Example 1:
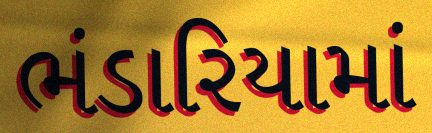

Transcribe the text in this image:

ભંડારિયામાં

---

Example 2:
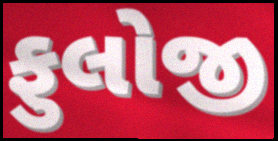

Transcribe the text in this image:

ફુલોજી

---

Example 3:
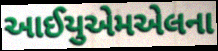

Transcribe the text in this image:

આઈયુએમએલના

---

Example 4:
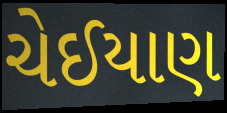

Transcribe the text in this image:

ચેઈયાણ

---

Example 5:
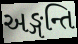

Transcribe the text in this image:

અઙ્ગન્તિ